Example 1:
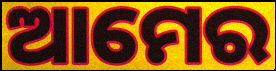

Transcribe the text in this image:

ଆମେର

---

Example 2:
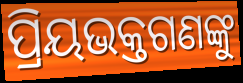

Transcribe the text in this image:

ପ୍ରିୟଭକ୍ତଗଣଙ୍କୁ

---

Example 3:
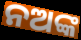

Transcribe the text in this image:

ନଅଙ୍କ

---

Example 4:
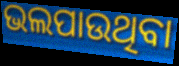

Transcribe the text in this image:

ଭଲପାଉଥିବା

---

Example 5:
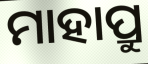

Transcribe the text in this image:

ମାହାପ୍ରୁ